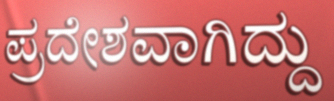
ಪ್ರದೇಶವಾಗಿದ್ದು